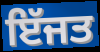
ਇੱਜਤ